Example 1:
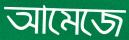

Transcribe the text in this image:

আমেজে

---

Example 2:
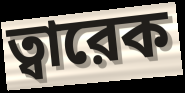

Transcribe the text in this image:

ত্বারেক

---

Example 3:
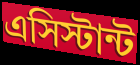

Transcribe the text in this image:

এসিস্টান্ট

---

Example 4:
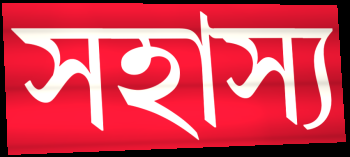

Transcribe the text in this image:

সহাস্য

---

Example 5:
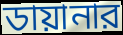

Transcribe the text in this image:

ডায়ানার